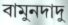
বামুনদাদু